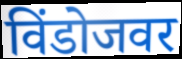
विंडोजवर